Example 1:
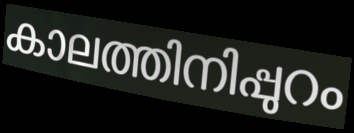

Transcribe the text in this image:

കാലത്തിനിപ്പുറം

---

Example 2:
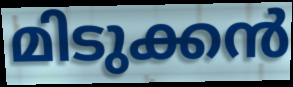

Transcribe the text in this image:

മിടുക്കൻ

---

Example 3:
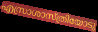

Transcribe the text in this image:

എസ്രാശാസ്ത്രിയോടു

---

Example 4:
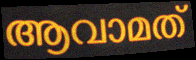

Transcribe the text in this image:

ആവാമത്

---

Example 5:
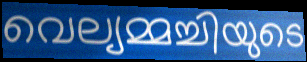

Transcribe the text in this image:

വെല്യമ്മച്ചിയുടെ